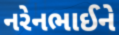
નરેનભાઈને